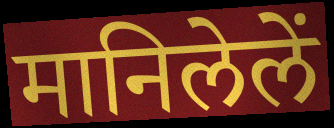
मानिलेलें